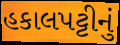
હકાલપટ્ટીનું